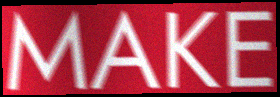
MAKE